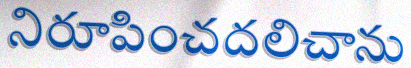
నిరూపించదలిచాను